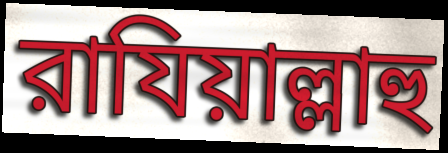
রাযিয়াল্লাহু